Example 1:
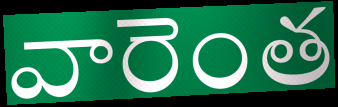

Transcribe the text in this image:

వారెంత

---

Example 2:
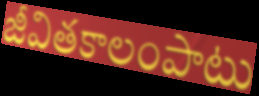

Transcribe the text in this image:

జీవితకాలంపాటు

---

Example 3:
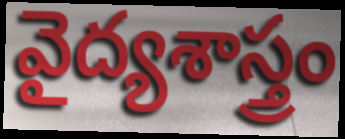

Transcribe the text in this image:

వైద్యశాస్త్రం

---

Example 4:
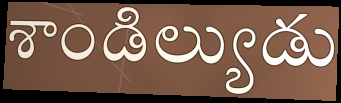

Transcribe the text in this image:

శాండిల్యుడు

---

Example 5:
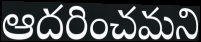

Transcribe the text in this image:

ఆదరించమని